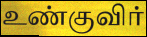
உண்குவிர்